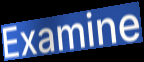
Examine